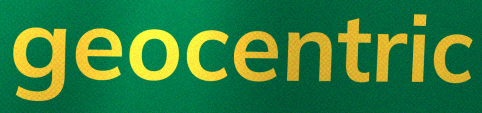
geocentric